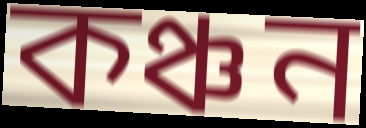
কঞ্চন